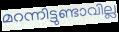
മറന്നിട്ടുണ്ടാവില്ല